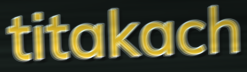
titakach